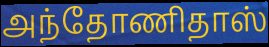
அந்தோணிதாஸ்